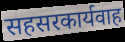
सहसरकार्यवाह